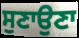
ਸੁਣਾਉਣਾ